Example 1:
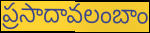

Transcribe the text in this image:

ప్రసాదావలంబాం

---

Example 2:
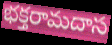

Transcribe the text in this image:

భక్తరామదాస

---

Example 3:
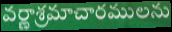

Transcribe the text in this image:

వర్ణాశ్రమాచారములను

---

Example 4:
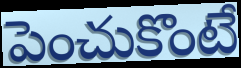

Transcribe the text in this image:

పెంచుకొంటే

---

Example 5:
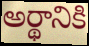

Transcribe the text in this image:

అర్థానికి